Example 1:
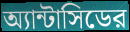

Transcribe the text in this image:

অ্যান্টাসিডের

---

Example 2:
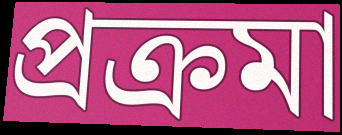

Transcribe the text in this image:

প্রক্রমা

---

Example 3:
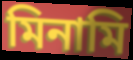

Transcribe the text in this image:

মিনামি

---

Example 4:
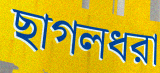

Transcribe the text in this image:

ছাগলধরা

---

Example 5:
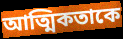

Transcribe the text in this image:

আত্মিকতাকে